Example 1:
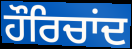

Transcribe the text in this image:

ਹੌਰਿਚਾਂਦ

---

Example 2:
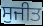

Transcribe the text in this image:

ਸੁਜੀਤ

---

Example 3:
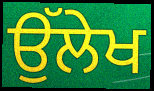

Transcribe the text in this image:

ਉੱਲੇਖ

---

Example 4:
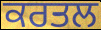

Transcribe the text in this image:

ਕਰਤਲ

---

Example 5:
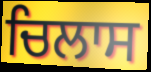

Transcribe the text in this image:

ਚਿਲਾਸ